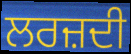
ਲਰਜ਼ਦੀ